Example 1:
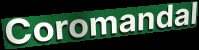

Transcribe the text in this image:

Coromandal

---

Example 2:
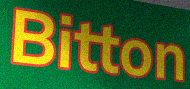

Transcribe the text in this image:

Bitton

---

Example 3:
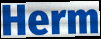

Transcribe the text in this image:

Herm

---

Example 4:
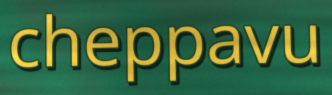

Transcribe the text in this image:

cheppavu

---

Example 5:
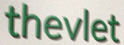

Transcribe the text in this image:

thevlet